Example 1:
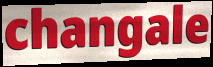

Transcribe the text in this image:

changale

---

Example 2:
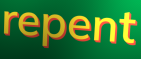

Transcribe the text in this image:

repent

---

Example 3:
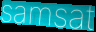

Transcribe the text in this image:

samsat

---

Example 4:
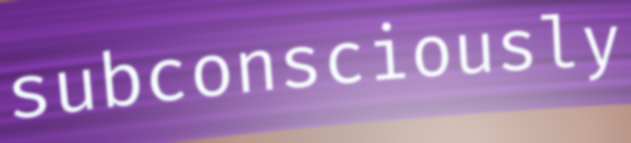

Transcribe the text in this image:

subconsciously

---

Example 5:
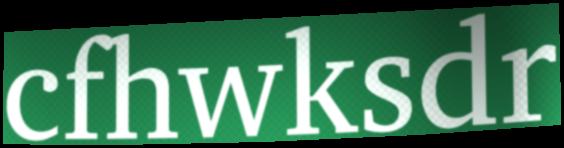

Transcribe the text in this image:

cfhwksdr